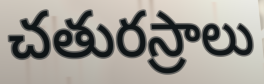
చతురస్రాలు